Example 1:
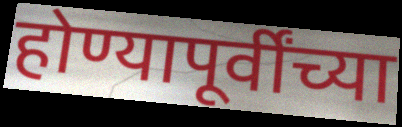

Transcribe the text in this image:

होण्यापूर्वींच्या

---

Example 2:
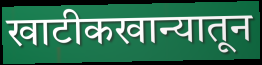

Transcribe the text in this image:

खाटीकखान्यातून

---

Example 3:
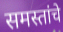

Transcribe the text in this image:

समस्तांचे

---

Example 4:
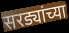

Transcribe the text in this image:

सरड्यांच्या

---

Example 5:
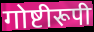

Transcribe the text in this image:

गोष्टीरूपी